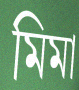
মিমা